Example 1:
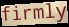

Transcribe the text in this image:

firmly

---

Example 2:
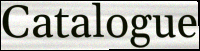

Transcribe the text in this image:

Catalogue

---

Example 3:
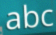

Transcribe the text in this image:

abc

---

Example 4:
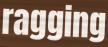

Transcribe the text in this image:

ragging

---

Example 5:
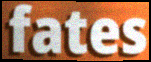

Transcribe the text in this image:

fates